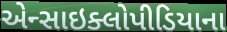
એન્સાઇક્લોપીડિયાના